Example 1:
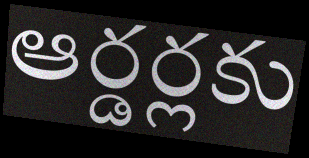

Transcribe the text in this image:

ఆర్డర్లకు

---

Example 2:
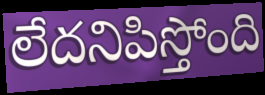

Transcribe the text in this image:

లేదనిపిస్తోంది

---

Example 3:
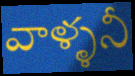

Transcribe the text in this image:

వాళ్ళనీ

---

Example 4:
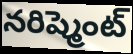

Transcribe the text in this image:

నరిష్మెంట్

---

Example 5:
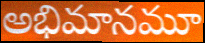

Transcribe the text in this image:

అభిమానమూ